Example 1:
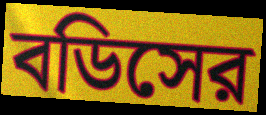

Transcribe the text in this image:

বডিসের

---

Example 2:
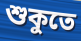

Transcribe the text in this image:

শুকুতে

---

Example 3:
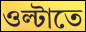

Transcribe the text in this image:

ওল্টাতে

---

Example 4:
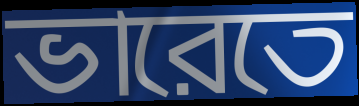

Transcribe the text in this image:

ভারেতে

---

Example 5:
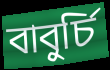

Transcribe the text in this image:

বাবুর্চি